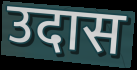
उदास